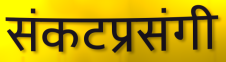
संकटप्रसंगी